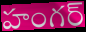
హంగర్